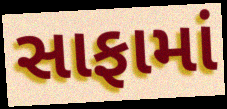
સાફામાં